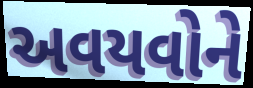
અવયવોને